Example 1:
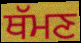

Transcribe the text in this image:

ਥੱਮਣ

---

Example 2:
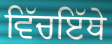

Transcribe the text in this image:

ਵਿੱਚਇੱਥੇ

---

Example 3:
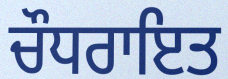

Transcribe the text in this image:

ਚੌਧਰਾਇਤ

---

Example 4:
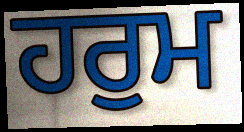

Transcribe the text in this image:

ਹਰੁਮ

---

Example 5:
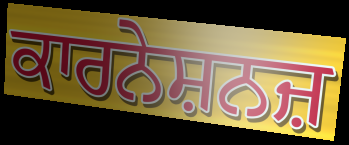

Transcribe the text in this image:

ਕਾਰਨੇਸ਼ਨਜ਼